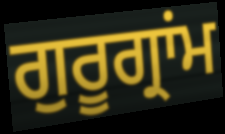
ਗੁਰੂਗ੍ਰਾਂਮ